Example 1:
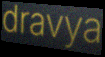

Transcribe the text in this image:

dravya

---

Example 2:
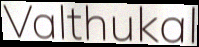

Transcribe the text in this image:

Valthukal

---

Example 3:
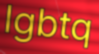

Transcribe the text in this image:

lgbtq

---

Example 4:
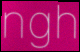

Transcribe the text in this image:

ngh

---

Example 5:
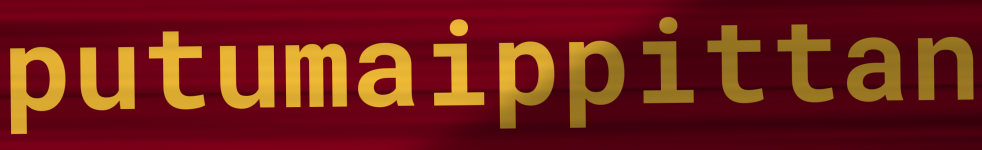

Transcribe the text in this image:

putumaippittan